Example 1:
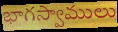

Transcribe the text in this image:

భాగస్వాములు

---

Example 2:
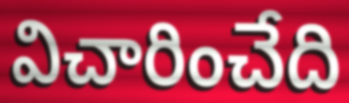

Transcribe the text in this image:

విచారించేది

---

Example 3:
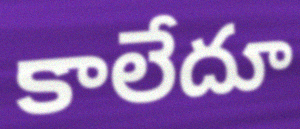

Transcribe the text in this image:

కాలేదూ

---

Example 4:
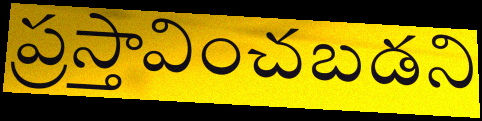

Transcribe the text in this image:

ప్రస్తావించబడని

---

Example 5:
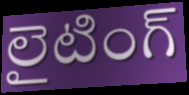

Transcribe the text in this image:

లైటింగ్